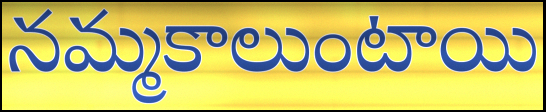
నమ్మకాలుంటాయి